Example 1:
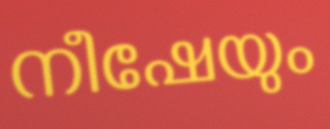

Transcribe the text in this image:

നീഷേയും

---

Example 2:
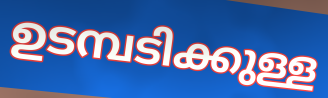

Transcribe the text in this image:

ഉടമ്പടിക്കുള്ള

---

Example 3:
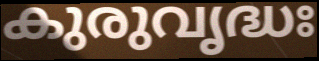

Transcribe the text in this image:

കുരുവൃദ്ധഃ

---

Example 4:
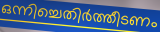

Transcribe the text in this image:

ഒന്നിച്ചെതിർത്തീടണം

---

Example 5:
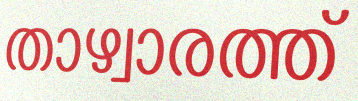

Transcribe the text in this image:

താഴ്വാരത്ത്